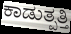
ಕಾಡುತ್ಪತ್ತಿ